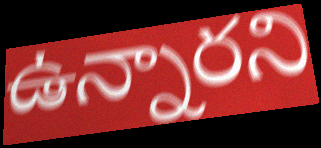
ఉన్నారని